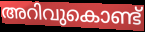
അറിവുകൊണ്ട്